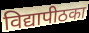
विद्यापीठका